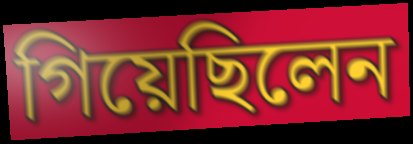
গিয়েছিলেন